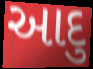
આદુ